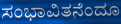
ಸಂಭಾವಿತನೆಂದೂ